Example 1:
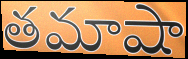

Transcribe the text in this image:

తమాషా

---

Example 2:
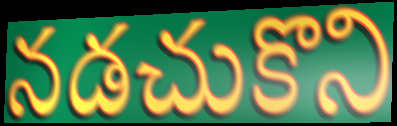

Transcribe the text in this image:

నడచుకొని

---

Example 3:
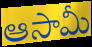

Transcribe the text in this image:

ఆసామీ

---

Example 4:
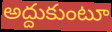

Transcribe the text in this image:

అద్దుకుంటూ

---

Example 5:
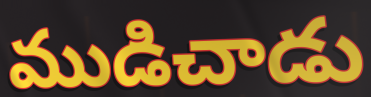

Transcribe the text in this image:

ముడిచాడు